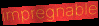
impregnable